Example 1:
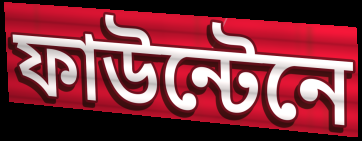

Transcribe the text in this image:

ফাউন্টেনে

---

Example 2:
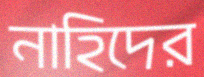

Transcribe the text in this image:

নাহিদের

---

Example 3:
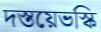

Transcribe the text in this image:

দস্তয়েভস্কি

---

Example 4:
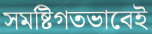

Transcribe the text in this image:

সমষ্টিগতভাবেই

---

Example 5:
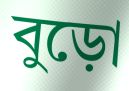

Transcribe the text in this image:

বুড়ো